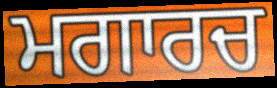
ਮਗਾਰਚ